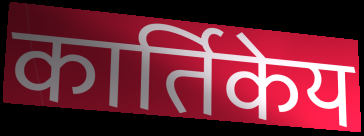
कार्तिकेय